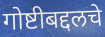
गोष्टीबद्दलचे